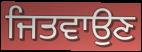
ਜਿਤਵਾਉਣ